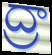
ద్రా